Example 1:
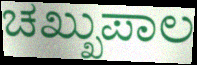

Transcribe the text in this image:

ಚಖ್ಖುಪಾಲ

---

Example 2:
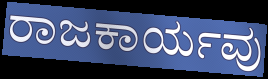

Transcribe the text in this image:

ರಾಜಕಾರ್ಯವು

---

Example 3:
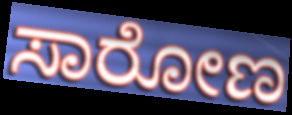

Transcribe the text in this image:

ಸಾರೋಣ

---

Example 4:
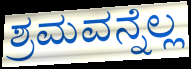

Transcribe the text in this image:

ಶ್ರಮವನ್ನೆಲ್ಲ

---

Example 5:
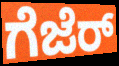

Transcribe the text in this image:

ಗೆಜೆರ್